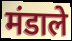
मंडाले